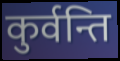
कुर्वन्ति